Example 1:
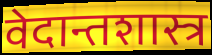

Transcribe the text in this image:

वेदान्तशास्त्र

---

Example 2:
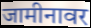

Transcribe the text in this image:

जामीनावर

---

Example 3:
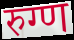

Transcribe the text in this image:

रुग्ण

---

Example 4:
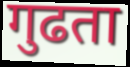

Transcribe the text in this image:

गुढता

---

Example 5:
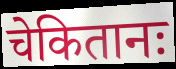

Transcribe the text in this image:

चेकितानः